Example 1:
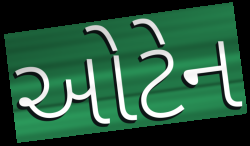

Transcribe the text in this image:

ઓટેન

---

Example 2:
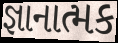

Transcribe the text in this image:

જ્ઞાનાત્મક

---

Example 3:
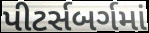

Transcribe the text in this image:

પીટર્સબર્ગમાં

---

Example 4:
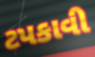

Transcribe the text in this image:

ટપકાવી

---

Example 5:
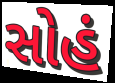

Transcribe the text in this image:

સોહં